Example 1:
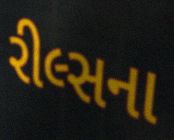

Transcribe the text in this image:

રીલ્સના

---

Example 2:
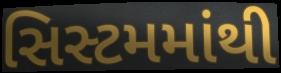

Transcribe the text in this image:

સિસ્ટમમાંથી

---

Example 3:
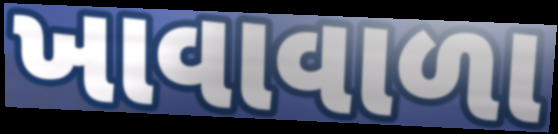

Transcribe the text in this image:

ખાવાવાળા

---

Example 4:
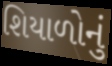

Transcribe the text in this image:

શિયાળોનું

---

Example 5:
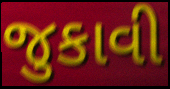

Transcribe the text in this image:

જુકાવી